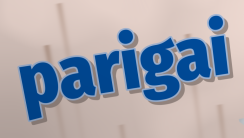
parigai